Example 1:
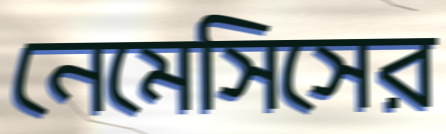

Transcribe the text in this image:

নেমেসিসের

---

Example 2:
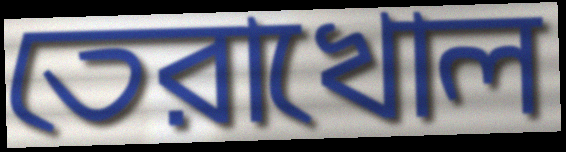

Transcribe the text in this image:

তেরাখোল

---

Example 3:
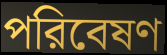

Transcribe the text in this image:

পরিবেষণ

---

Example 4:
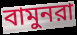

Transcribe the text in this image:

বামুনরা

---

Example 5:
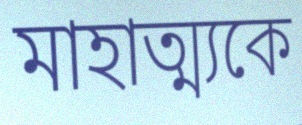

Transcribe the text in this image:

মাহাত্ম্যকে